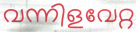
വന്നിളവേറ്റ